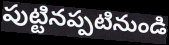
పుట్టినప్పటినుండి